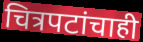
चित्रपटांचाही